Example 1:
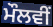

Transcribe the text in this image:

ਮੌਲਵੀਂ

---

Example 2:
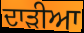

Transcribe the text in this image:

ਦਾੜੀਆ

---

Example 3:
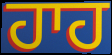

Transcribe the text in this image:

ਹਾਹ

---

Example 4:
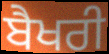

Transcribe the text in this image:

ਬੈਖਰੀ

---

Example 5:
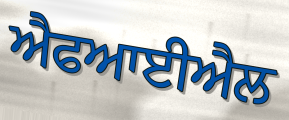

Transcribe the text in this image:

ਐਫਆਈਐਲ